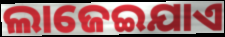
ଲାଜେଇଯାଏ